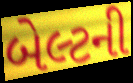
બેલ્ટની